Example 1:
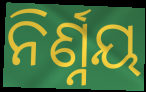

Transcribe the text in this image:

ନିର୍ଣ୍ନୟ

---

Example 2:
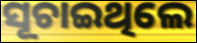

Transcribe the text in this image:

ସୂଚାଇଥିଲେ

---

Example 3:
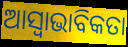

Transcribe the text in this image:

ଆସ୍ବାଭାବିକତା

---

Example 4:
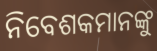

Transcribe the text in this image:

ନିବେଶକମାନଙ୍କୁ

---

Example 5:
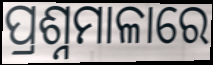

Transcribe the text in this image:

ପ୍ରଶ୍ନମାଳାରେ